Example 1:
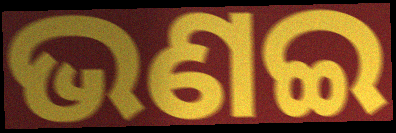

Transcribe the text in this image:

ଭଣଇ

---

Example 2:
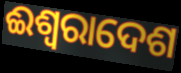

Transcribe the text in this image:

ଈଶ୍ୱରାଦେଶ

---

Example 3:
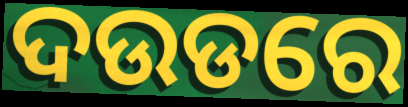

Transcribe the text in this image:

ଦଉଡରେ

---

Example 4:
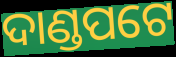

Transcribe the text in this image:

ଦାଣ୍ଡପଟେ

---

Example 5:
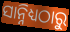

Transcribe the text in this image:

ସାନ୍ନିଧ୍ୟଠାରୁ